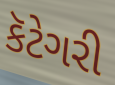
કૅટેગરી